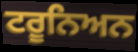
ਟਰੂਨਿਅਨ